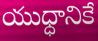
యుధ్ధానికే